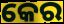
କେର